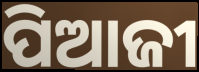
ପିଆଜୀ